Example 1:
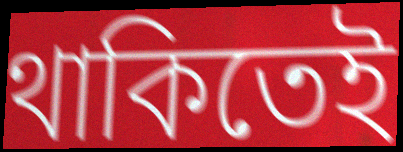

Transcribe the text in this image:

থাকিতেই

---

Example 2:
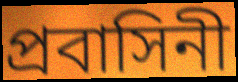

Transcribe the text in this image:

প্রবাসিনী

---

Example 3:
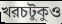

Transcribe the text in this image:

খরচটুকুও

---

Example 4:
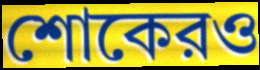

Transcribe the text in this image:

শোকেরও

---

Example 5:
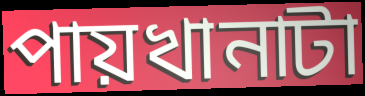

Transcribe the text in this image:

পায়খানাটা